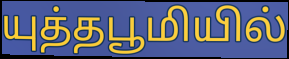
யுத்தபூமியில்